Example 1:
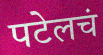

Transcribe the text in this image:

पटेलचं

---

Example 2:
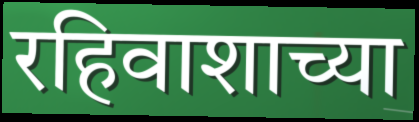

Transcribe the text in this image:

रहिवाशाच्या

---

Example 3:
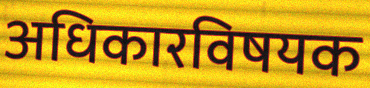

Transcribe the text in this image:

अधिकारविषयक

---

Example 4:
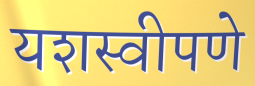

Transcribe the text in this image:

यशस्वीपणे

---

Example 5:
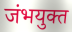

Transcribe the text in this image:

जंभयुक्त